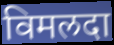
विमलदा